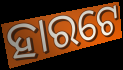
ହାରଟେ